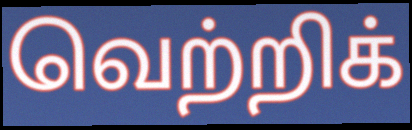
வெற்றிக்